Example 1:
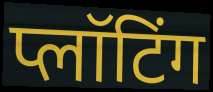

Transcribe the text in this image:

प्लॉटिंग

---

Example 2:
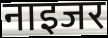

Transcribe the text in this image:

नाइजर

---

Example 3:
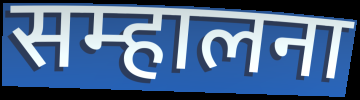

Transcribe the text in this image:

सम्हालना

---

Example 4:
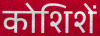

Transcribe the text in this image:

कोशिशें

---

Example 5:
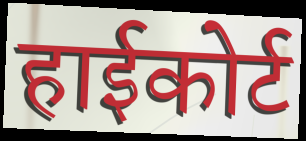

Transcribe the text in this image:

हाईकोर्ट